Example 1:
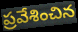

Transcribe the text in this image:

ప్రవేశించిన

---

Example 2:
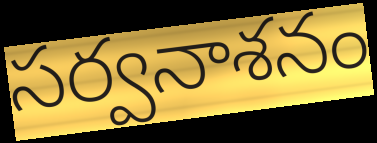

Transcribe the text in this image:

సర్వనాశనం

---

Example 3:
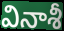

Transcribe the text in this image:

వినాశీ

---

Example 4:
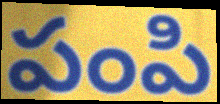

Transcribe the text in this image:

పంపి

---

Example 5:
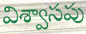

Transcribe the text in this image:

విశ్వాసపు